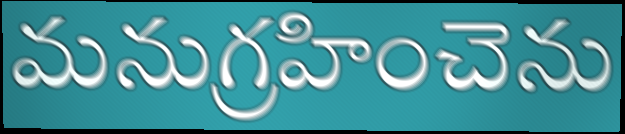
మనుగ్రహించెను